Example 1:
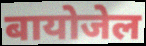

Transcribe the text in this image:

बायोजेल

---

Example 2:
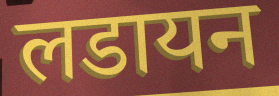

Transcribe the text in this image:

लडायन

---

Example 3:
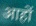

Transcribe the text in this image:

आहों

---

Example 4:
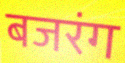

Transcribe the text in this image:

बजरंग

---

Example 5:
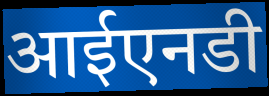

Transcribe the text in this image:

आईएनडी